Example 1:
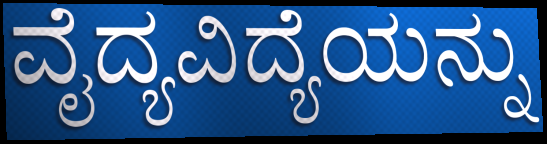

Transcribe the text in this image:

ವೈದ್ಯವಿದ್ಯೆಯನ್ನು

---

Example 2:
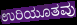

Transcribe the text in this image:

ಉರಿಯೂತವು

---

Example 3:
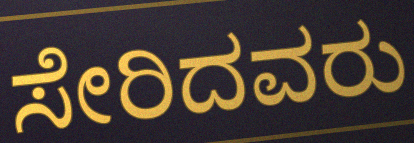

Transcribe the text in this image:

ಸೇರಿದವರು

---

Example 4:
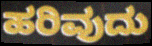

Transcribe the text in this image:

ಹರಿವುದು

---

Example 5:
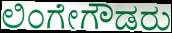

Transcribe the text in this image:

ಲಿಂಗೇಗೌಡರು